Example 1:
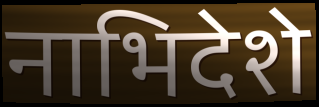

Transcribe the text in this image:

नाभिदेशे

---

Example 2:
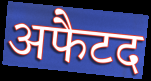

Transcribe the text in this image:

अफैटद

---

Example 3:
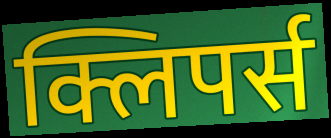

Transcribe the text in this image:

क्लिपर्स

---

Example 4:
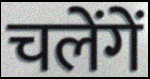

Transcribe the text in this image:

चलेंगें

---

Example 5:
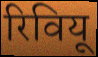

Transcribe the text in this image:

रिवियू